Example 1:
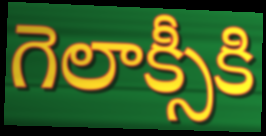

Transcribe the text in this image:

గెలాక్సీకి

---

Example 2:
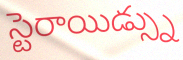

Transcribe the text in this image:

స్టెరాయిడ్స్ను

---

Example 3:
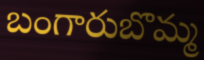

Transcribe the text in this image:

బంగారుబొమ్మ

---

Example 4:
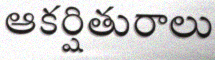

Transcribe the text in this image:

ఆకర్షితురాలు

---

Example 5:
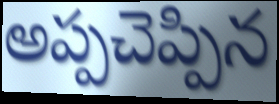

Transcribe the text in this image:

అప్పచెప్పిన